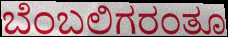
ಬೆಂಬಲಿಗರಂತೂ